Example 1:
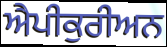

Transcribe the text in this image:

ਐਪੀਕੁਰੀਅਨ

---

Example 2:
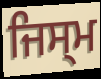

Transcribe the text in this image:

ਜਿਸ੍ਮ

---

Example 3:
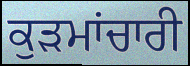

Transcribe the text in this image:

ਕੁੜਮਾਂਚਾਰੀ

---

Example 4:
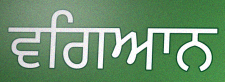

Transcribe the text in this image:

ਵਗਿਆਨ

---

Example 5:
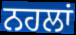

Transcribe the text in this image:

ਨਹਲਾਂ